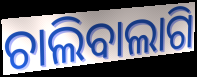
ଚାଲିବାଲାଗି